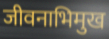
जीवनाभिमुख